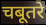
चबूतरे